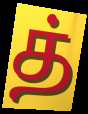
த்